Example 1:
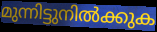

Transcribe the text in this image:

മുന്നിട്ടുനിൽക്കുക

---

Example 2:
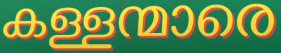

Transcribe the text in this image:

കള്ളന്മാരെ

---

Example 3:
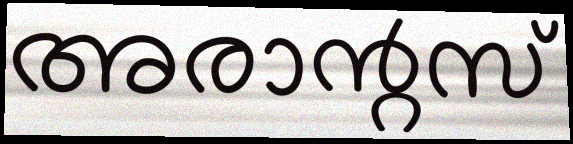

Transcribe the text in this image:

അരാന്റസ്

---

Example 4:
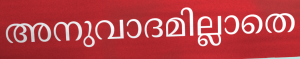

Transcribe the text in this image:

അനുവാദമില്ലാതെ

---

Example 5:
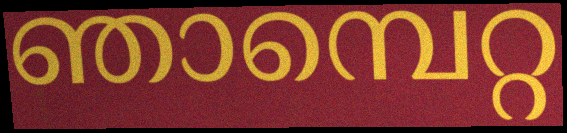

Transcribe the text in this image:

ഞാമ്പെറ്റ